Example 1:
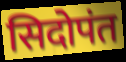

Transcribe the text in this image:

सिदोपंत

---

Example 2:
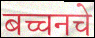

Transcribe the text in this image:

बच्चनचे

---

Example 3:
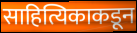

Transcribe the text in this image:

साहित्यिकाकडून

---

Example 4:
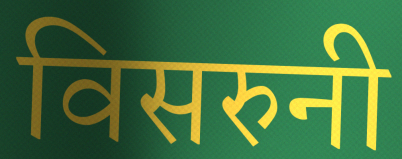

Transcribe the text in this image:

विसरुनी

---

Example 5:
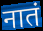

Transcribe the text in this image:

नातं